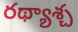
రథ్యాశ్చ